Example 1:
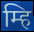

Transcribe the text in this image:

म्हि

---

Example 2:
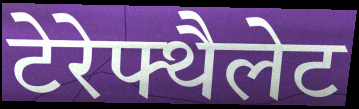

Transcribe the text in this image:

टेरेफ्थैलेट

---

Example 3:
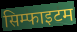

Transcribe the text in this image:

सिम्फाइटम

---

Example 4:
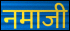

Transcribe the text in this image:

नमाजी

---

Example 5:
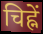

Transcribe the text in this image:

चिह्नें